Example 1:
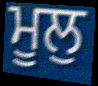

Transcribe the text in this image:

ਮੂਲੁ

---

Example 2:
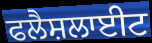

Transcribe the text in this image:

ਫਲੈਸ਼ਲਾਈਟ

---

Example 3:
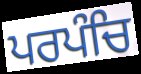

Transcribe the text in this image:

ਪਰਪੰਚਿ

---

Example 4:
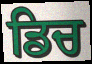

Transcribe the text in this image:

ਡਿਚ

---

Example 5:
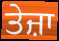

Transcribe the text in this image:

ਤੇਜ਼ਾ